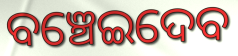
ବଞ୍ଚେଇଦେବ